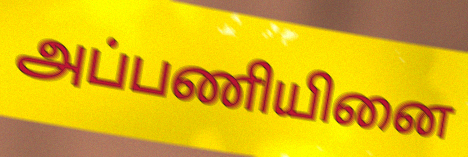
அப்பணியினை